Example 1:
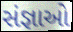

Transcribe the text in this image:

સંજ્ઞાઓ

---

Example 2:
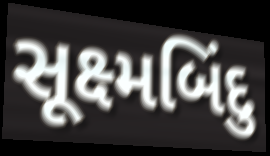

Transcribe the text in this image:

સૂક્ષ્મબિંદુ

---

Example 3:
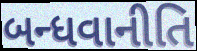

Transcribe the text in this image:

બન્ધવાનીતિ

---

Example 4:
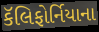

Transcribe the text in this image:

કૅલિફોર્નિયાના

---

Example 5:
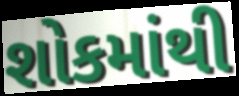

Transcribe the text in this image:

શોકમાંથી